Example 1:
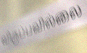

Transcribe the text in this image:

விருப்பவில்லை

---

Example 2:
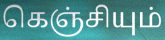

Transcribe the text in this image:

கெஞ்சியும்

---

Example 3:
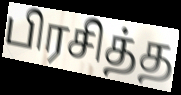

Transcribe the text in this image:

பிரசித்த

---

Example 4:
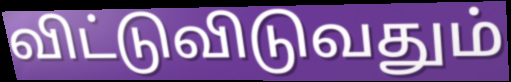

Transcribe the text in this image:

விட்டுவிடுவதும்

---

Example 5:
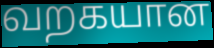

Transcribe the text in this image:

வறகயான